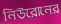
নিউরোনের